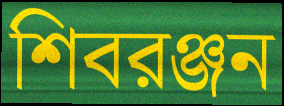
শিবরঞ্জন